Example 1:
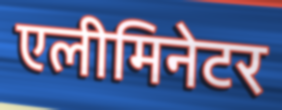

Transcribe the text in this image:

एलीमिनेटर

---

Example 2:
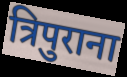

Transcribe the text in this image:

त्रिपुराना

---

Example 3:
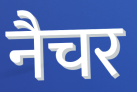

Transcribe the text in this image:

नैचर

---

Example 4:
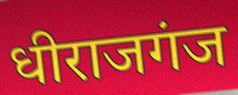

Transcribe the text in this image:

धीराजगंज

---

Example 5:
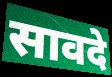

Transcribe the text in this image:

सावदे